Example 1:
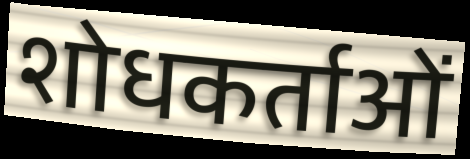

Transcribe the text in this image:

शोधकर्ताओं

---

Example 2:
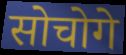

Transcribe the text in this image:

सोचोगे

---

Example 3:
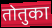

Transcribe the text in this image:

तोतुका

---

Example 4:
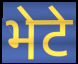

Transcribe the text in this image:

भेटे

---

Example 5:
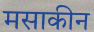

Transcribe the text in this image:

मसाकीन